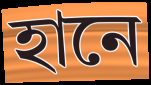
হানে